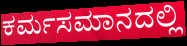
ಕರ್ಮಸಮಾನದಲ್ಲಿ